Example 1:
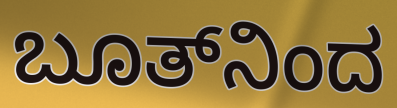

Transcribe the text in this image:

ಬೂತ್‌ನಿಂದ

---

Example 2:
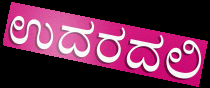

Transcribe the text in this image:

ಉದರದಲಿ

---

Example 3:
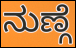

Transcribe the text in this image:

ನುಣ್ಗೆ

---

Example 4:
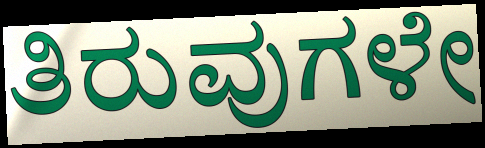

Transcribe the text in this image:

ತಿರುವುಗಳೇ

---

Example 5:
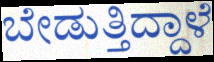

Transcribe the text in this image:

ಬೇಡುತ್ತಿದ್ದಾಳೆ